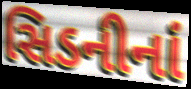
સિડનીનાં